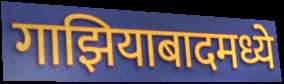
गाझियाबादमध्ये